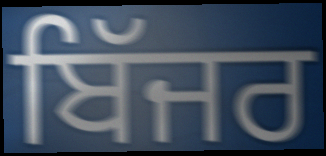
ਬਿੱਜਰ